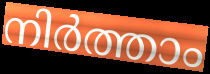
നിർത്താം